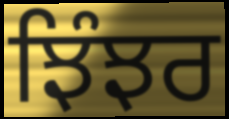
ਝਿੰਝਰ